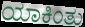
ಯಾಕಿಂತು